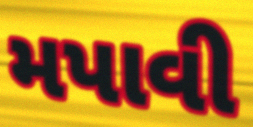
મપાવી